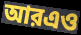
আরএও